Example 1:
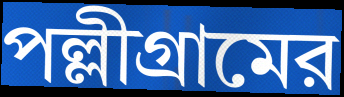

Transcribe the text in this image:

পল্লীগ্রামের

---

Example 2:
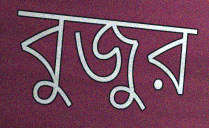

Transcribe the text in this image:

বুজুর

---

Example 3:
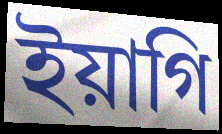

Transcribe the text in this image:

ইয়াগি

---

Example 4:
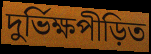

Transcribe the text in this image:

দুর্ভিক্ষপীড়িত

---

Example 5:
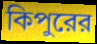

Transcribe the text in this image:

কিপুরের